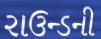
રાઉન્ડની